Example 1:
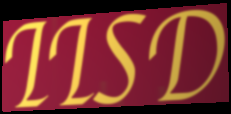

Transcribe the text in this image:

IISD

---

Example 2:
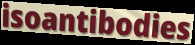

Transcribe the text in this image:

isoantibodies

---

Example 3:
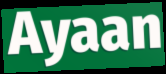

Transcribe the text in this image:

Ayaan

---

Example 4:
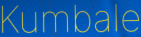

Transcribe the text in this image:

Kumbale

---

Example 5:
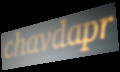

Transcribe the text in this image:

chavdapr